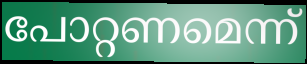
പോറ്റണമെന്ന്